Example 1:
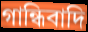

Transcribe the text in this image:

গান্ধিবাদি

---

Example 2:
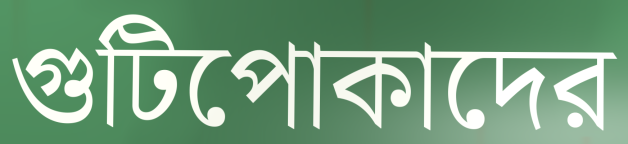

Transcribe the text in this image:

গুটিপোকাদের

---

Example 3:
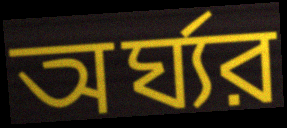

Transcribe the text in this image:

অর্ঘ্যর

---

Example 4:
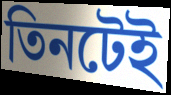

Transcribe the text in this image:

তিনটেই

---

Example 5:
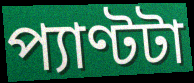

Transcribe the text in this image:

প্যাণ্টটা